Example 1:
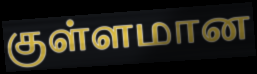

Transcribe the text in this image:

குள்ளமான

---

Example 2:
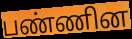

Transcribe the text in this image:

பண்ணின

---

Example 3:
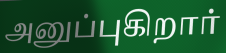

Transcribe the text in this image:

அனுப்புகிறார்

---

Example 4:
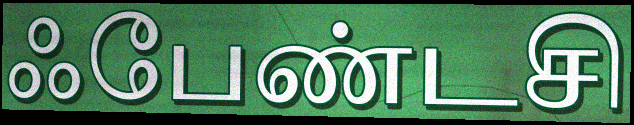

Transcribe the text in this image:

ஃபேண்டசி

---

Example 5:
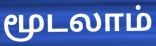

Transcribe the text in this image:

மூடலாம்